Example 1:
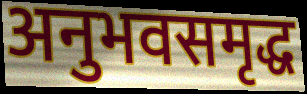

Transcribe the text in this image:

अनुभवसमृद्ध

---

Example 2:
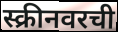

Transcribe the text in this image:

स्क्रीनवरची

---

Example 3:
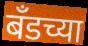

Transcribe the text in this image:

बँडच्या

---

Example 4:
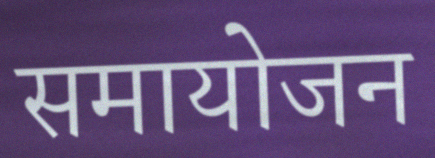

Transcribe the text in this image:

समायोजन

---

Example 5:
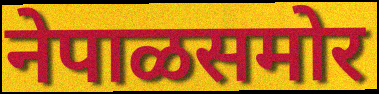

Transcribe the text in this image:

नेपाळसमोर